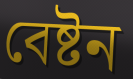
বেষ্টন